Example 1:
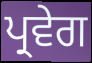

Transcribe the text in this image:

ਪ੍ਰਵੇਗ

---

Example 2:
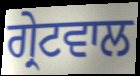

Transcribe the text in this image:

ਗ੍ਰੇਟਵਾਲ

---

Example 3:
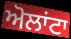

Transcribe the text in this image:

ਅੋਲਾਂਟਾ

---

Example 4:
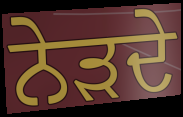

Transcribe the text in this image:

ਨੇੜਦੇ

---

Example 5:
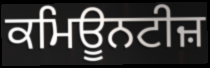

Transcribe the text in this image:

ਕਮਿਊਨਟੀਜ਼